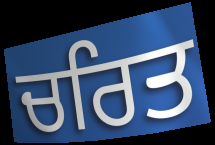
ਚਰਿਤ